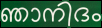
ഞാനിദം